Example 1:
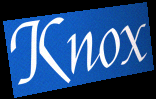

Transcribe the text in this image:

Knox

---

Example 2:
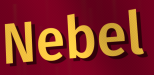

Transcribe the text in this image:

Nebel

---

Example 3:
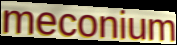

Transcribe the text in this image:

meconium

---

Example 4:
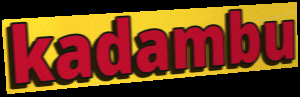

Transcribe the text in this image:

kadambu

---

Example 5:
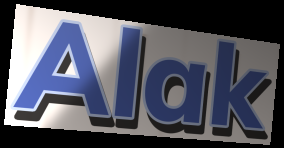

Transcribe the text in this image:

Alak